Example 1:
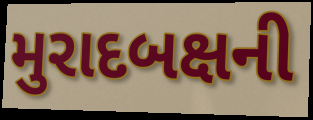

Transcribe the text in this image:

મુરાદબક્ષની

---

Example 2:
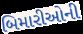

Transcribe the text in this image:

બિમારીઓની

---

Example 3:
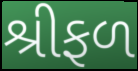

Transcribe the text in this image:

શ્રીફળ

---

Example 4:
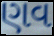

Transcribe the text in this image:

ણવ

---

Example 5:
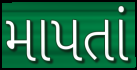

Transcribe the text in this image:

માપતાં